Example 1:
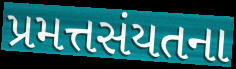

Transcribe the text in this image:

પ્રમત્તસંયતના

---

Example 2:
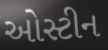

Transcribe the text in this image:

ઓસ્ટીન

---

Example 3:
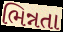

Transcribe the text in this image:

ભિન્નતા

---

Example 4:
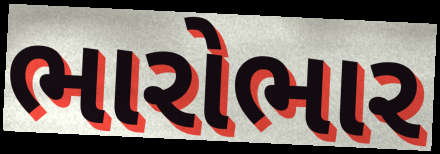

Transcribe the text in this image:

ભારોભાર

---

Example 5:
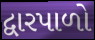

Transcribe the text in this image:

દ્વારપાળો